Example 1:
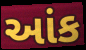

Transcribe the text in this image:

આંક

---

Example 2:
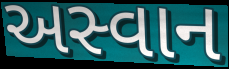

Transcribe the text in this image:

અસ્વાન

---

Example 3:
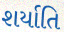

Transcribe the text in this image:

શર્યાતિ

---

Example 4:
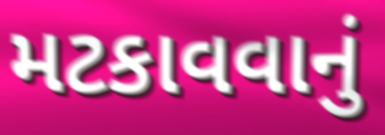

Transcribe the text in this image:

મટકાવવાનું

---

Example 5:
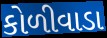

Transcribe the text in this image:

કોળીવાડા